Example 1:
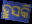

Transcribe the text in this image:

ହୁସକି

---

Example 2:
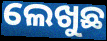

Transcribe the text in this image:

ଲେଖୁଛ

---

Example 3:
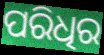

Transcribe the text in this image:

ପରିଧିର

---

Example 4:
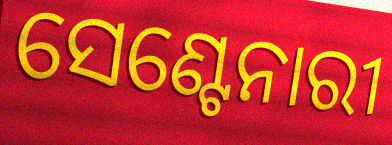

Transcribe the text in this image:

ସେଣ୍ଟେନାରୀ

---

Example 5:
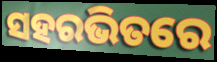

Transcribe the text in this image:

ସହରଭିତରେ